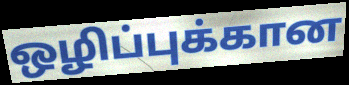
ஒழிப்புக்கான